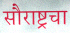
सौराष्ट्रचा